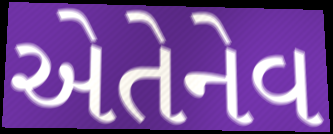
એતેનેવ